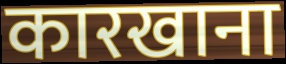
कारखाना